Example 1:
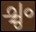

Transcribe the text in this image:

ച്ചും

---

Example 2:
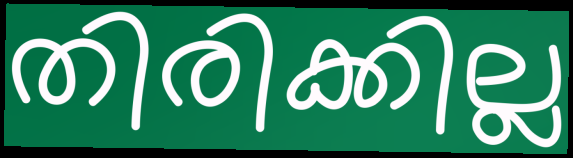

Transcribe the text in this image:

തിരിക്കില്ല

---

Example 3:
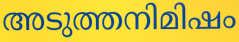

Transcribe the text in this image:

അടുത്തനിമിഷം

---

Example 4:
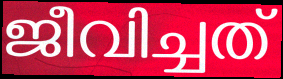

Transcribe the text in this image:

ജീവിച്ചത്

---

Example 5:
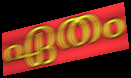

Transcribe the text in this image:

ഏതം